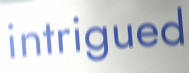
intrigued